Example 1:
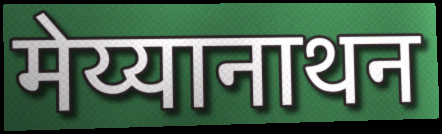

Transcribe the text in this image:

मेय्यानाथन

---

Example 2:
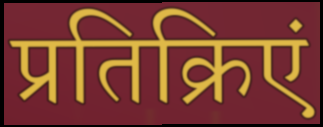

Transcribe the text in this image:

प्रतिक्रिएं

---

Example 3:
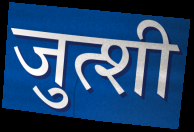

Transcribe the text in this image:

जुत्शी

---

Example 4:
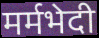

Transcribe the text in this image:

मर्मभेदी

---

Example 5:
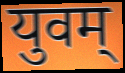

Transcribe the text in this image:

युवम्